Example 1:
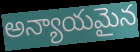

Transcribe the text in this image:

అన్యాయమైన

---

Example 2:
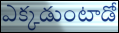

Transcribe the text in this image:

ఎక్కడుంటాడో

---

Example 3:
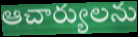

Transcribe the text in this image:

ఆచార్యులను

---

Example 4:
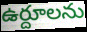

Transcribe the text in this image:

ఉర్దూలను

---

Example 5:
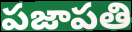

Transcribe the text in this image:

పజాపతి